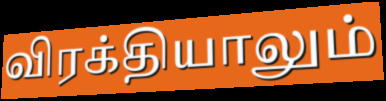
விரக்தியாலும்